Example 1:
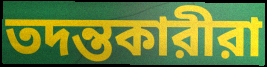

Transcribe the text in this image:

তদন্তকারীরা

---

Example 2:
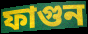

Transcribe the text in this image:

ফাগুন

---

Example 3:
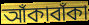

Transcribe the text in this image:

আঁকাবাঁকা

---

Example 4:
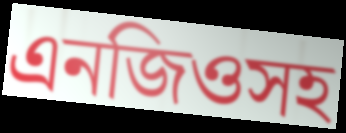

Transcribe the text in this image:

এনজিওসহ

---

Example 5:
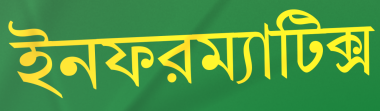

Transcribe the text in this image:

ইনফরম্যাটিক্স